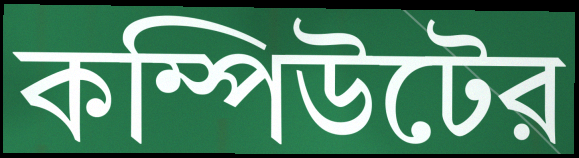
কম্পিউটের